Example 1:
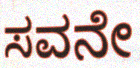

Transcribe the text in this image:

ಸವನೇ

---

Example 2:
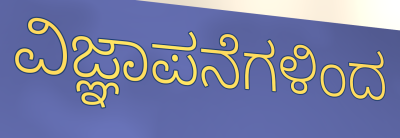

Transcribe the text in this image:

ವಿಜ್ಞಾಪನೆಗಳಿಂದ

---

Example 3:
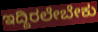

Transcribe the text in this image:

ಇದ್ದಿರಲೇಬೇಕು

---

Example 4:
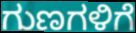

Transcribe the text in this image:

ಗುಣಗಳಿಗೆ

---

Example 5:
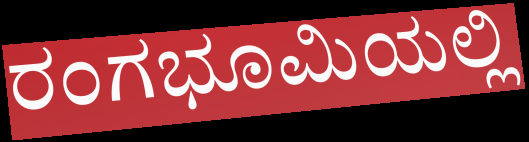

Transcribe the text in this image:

ರಂಗಭೂಮಿಯಲ್ಲಿ